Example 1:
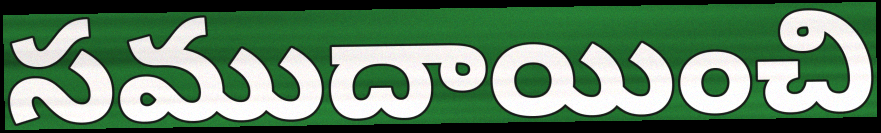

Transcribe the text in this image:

సముదాయించి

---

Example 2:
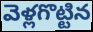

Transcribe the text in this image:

వెళ్లగొట్టిన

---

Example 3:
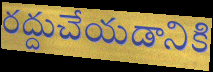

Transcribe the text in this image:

రద్దుచేయడానికి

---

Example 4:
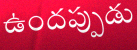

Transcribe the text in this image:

ఉందప్పుడు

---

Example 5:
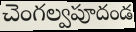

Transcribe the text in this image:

చెంగల్వపూదండ